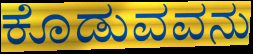
ಕೊಡುವವನು